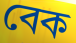
বেক